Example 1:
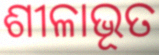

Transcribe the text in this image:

ଶୀଳାଭୂତ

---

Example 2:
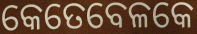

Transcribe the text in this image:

କେତେବେଳକେ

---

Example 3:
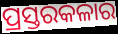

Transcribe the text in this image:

ପ୍ରସ୍ତରକଳାର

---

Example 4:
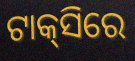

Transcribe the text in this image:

ଟାକ୍‌ସିରେ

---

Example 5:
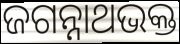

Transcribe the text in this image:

ଜଗନ୍ନାଥଭକ୍ତ